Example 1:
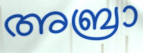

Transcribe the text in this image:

അബ്രാ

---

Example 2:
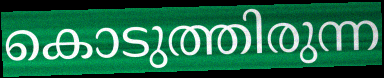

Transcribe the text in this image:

കൊടുത്തിരുന്ന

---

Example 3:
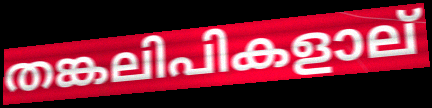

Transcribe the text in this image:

തങ്കലിപികളാല്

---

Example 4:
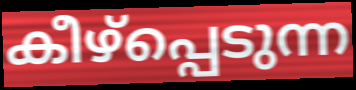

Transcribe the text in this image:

കീഴ്പ്പെടുന്ന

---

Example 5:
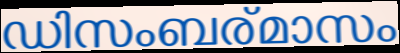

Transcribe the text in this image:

ഡിസംബര്മാസം